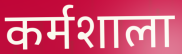
कर्मशाला